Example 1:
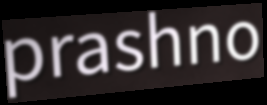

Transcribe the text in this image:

prashno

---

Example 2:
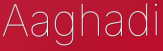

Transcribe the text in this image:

Aaghadi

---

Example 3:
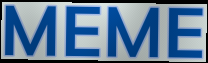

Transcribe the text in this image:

MEME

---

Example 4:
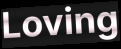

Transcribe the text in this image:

Loving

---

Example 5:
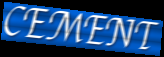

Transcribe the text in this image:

CEMENT